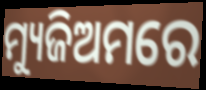
ମ୍ୟୁଜିଅମରେ